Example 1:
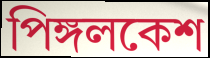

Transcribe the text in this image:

পিঙ্গলকেশ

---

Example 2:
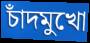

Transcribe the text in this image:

চাঁদমুখো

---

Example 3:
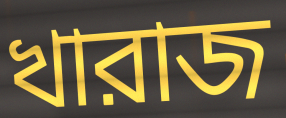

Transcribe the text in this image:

খারাজ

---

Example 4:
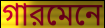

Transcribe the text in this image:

গারমেনে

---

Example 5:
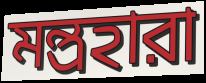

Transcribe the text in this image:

মন্ত্রহারা